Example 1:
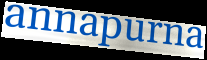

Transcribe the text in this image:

annapurna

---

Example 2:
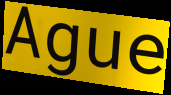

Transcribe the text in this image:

Ague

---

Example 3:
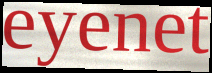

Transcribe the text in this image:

eyenet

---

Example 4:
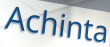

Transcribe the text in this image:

Achinta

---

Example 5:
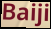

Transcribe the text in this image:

Baiji